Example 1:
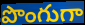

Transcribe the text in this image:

పొంగుగా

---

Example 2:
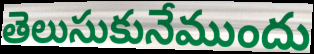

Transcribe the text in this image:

తెలుసుకునేముందు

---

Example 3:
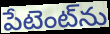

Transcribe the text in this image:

పేటెంట్‌ను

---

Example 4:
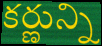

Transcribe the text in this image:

కర్ణున్ని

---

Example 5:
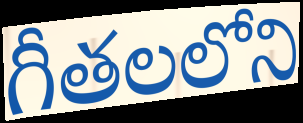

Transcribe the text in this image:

గీతలలోని